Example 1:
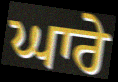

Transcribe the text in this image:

ਘਾਰੇ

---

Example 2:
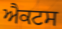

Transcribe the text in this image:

ਐਕਟਸ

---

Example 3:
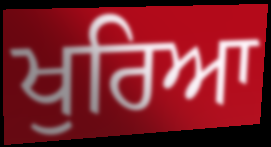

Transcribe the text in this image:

ਖੁਰਿਆ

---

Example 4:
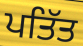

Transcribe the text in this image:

ਪਤਿੱਤ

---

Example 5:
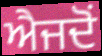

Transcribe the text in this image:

ਐਜਦੋਂ